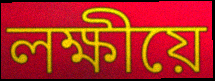
লক্ষীয়ে